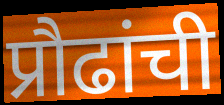
प्रौढांची